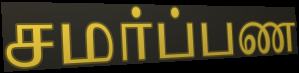
சமர்ப்பண